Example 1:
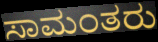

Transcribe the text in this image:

ಸಾಮಂತರು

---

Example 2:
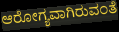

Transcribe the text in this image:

ಆರೋಗ್ಯವಾಗಿರುವಂತೆ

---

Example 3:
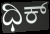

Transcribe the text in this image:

ಧಿಕ್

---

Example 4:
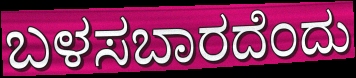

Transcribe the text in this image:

ಬಳಸಬಾರದೆಂದು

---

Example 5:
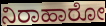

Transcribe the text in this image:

ನಿರಾಹಾರೋ